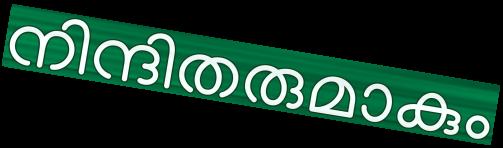
നിന്ദിതരുമാകും